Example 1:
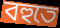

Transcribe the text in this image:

বহুতে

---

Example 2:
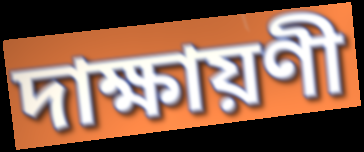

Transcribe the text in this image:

দাক্ষায়ণী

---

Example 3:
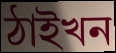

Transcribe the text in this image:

ঠাইখন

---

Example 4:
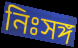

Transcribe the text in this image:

নিঃসঙ্গ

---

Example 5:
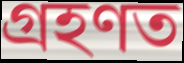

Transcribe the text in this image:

গ্ৰহণত